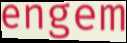
engem